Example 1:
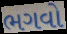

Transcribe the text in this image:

ભગવો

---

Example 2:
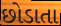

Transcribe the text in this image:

છોડાતા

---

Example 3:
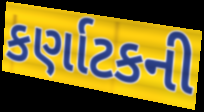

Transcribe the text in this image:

કર્ણાટકની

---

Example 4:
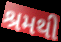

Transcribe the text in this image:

શ્રમથી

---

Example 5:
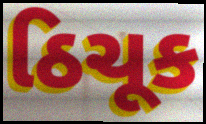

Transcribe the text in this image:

ઠિચૂક